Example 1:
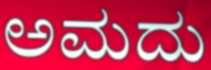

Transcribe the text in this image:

ಅಮದು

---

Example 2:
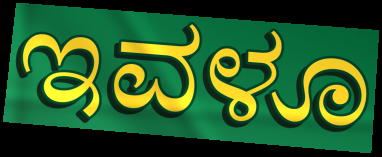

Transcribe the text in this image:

ಇವಳೂ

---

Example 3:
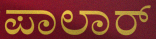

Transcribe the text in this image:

ಪಾಲಾರ್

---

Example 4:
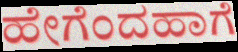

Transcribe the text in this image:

ಹೇಗೆಂದಹಾಗೆ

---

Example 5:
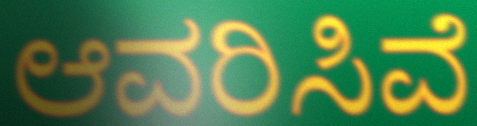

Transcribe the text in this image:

ಆವರಿಸಿವೆ